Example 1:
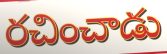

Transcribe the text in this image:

రచించాడు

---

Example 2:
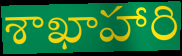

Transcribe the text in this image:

శాఖాహారి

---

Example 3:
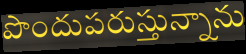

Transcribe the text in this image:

పొందుపరుస్తున్నాను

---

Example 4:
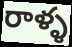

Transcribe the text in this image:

రాళ్ళ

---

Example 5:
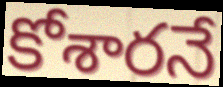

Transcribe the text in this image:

కోశారనే